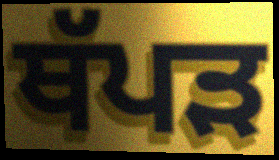
ਥੱਪੜ